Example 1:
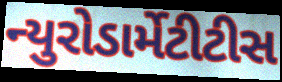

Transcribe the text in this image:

ન્યુરોડાર્મેટીટીસ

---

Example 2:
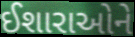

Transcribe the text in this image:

ઈશારાઓને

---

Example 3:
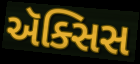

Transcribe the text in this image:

ઍક્સિસ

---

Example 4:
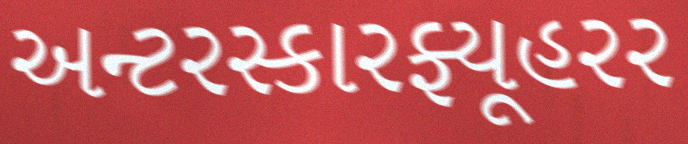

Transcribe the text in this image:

અન્ટરસ્કારફ્યૂહરર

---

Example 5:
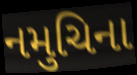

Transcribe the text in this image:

નમુચિના